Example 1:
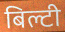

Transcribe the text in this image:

बिल्टी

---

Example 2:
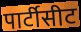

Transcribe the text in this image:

पार्टीसीट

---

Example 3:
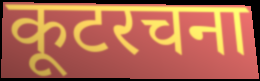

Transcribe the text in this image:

कूटरचना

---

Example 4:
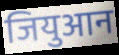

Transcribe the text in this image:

जियुआन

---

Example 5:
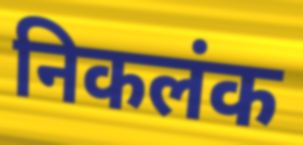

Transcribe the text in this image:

निकलंक